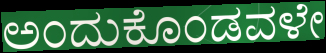
ಅಂದುಕೊಂಡವಳೇ